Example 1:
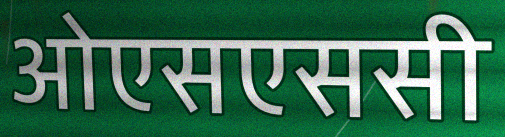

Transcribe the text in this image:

ओएसएससी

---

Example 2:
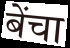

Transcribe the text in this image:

बेंचा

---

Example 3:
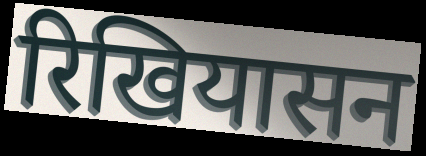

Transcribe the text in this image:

रिखियासन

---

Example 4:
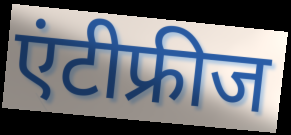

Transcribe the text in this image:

एंटीफ्रीज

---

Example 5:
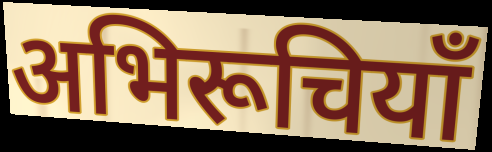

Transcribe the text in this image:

अभिरूचियाँ